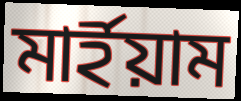
মার্ইয়াম